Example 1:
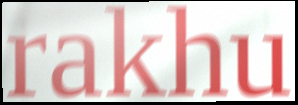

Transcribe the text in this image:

rakhu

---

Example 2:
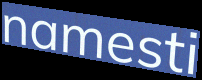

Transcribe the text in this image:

namesti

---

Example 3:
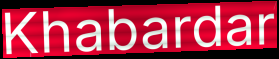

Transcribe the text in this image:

Khabardar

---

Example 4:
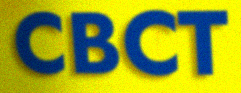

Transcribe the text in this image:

CBCT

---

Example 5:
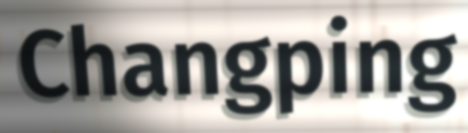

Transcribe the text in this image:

Changping